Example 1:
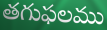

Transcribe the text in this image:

తగుఫలము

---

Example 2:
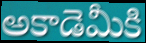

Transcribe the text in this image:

అకాడెమీకి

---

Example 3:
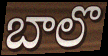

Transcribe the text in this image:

బాలొ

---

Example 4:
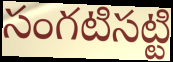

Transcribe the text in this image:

సంగటిసట్టి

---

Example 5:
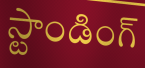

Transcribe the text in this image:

స్టాండింగ్